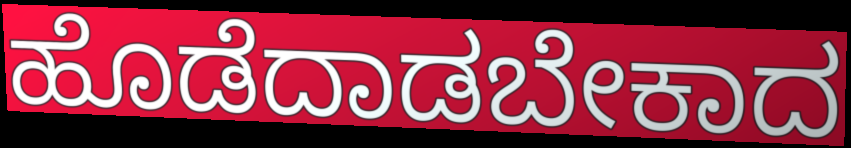
ಹೊಡೆದಾಡಬೇಕಾದ